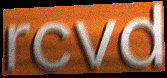
rcvd